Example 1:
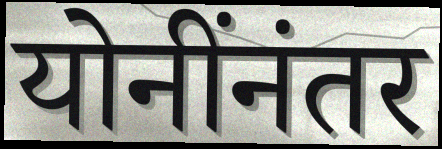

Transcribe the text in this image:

योनींनंतर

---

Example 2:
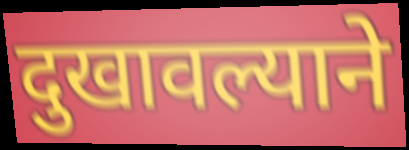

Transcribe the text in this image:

दुखावल्याने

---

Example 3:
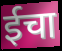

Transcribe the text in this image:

ईचा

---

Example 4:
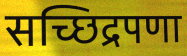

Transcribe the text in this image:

सच्छिद्रपणा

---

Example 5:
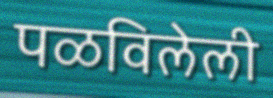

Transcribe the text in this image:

पळविलेली